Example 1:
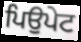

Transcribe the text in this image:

ਪਿਉਪੇਟ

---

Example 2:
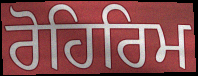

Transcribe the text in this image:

ਰੋਹਿਰਿਮ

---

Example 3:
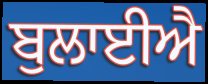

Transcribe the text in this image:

ਬੁਲਾਈਐ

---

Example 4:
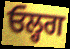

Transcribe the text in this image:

ਓਲ੍ਹਗ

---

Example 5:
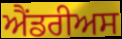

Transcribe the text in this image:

ਐਂਡਰੀਅਸ